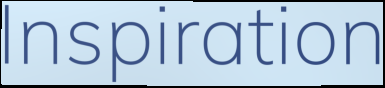
Inspiration